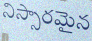
నిస్సారమైన